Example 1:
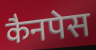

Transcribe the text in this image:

कैनपेस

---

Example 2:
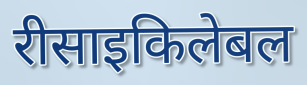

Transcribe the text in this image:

रीसाइकिलेबल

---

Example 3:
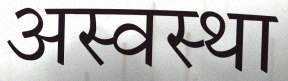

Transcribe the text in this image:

अस्वस्था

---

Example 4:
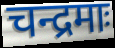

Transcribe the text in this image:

चन्द्रमाः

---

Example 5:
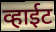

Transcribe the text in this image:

व्हाईट